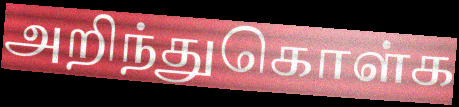
அறிந்துகொள்க